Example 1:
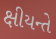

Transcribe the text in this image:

ક્ષીયન્તે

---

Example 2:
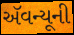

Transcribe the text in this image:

ઍવન્યૂની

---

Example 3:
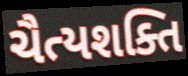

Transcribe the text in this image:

ચૈત્યશક્તિ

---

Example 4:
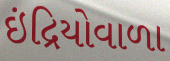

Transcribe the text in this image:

ઇંદ્રિયોવાળા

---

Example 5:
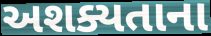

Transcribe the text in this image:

અશક્યતાના